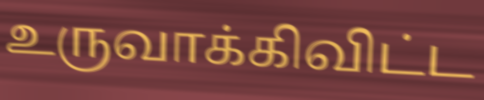
உருவாக்கிவிட்ட